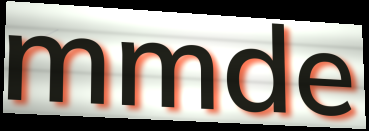
mmde